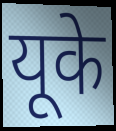
यूके